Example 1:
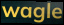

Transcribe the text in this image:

wagle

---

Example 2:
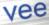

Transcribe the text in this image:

vee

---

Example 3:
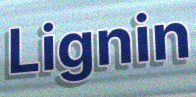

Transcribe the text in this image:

Lignin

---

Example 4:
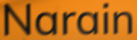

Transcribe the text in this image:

Narain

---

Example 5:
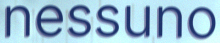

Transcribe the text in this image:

nessuno